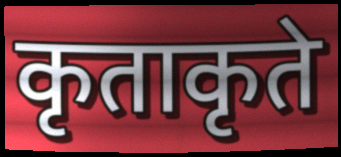
कृताकृते